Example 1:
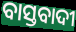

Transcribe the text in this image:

ବାସ୍ତବାଦୀ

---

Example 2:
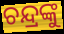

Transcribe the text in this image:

ଚନ୍ଦ୍ରଙ୍କୁ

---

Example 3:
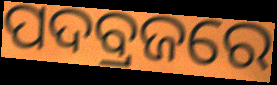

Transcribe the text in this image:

ପଦବ୍ରଜରେ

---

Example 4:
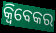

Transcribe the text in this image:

କ୍ୱିବେକର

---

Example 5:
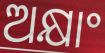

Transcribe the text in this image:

ଅକ୍ଷାଂ